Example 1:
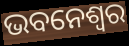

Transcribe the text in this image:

ଭବନେଶ୍ୱର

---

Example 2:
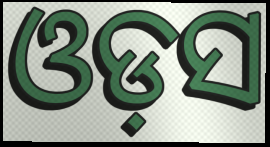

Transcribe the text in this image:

ଓଡ଼ସ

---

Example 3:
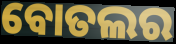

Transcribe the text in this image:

ବୋତଲର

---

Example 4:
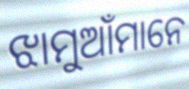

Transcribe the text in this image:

ଝାମୁଆଁମାନେ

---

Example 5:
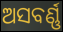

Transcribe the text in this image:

ଅସବର୍ଣ୍ଣ